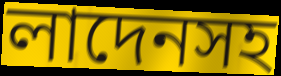
লাদেনসহ